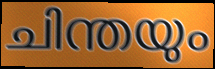
ചിന്തയും